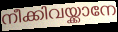
നീക്കിവയ്ക്കാനേ